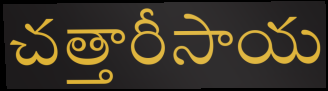
చత్తారీసాయ